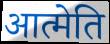
आत्मेति